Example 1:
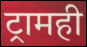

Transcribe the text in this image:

ट्रामही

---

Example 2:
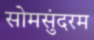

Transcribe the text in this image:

सोमसुंदरम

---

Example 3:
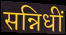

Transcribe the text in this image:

सन्निधीं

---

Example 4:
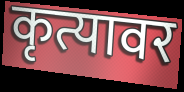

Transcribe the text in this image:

कृत्यावर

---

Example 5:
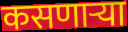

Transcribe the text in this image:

कसणाऱ्या